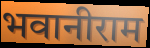
भवानीराम